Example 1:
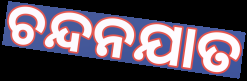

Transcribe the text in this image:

ଚନ୍ଦନଯାତ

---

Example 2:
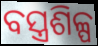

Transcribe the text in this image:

ବସ୍ତ୍ରଶିଳ୍ପ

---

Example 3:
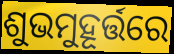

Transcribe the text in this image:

ଶୁଭମୁହୂର୍ତ୍ତରେ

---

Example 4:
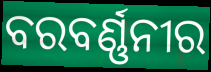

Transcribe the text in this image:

ବରବର୍ଣ୍ଣନୀର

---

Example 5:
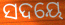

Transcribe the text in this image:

ସଦୟେ